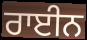
ਰਾਈਨ